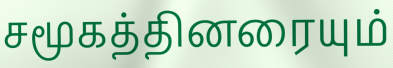
சமூகத்தினரையும்